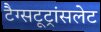
टैग्सटूट्रांसलेट